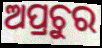
ଅପ୍ରଚୁର